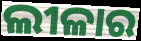
ଲୀଳାର